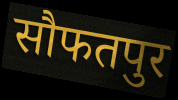
सौफतपुर